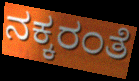
ನಕ್ಕರಂತೆ